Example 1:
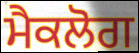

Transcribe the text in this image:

ਮੈਕਲੋਗ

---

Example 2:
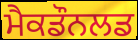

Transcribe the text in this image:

ਮੈਕਡੌਨਲਡ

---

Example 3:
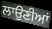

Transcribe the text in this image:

ਲਾਉਣੀਆਂ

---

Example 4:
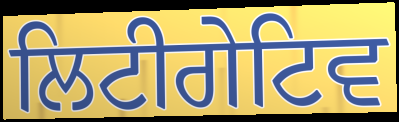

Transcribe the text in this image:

ਲਿਟੀਗੇਟਿਵ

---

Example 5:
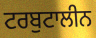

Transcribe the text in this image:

ਟਰਬੁਟਾਲੀਨ